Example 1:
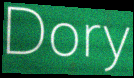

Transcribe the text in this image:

Dory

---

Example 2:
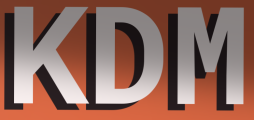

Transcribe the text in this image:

KDM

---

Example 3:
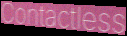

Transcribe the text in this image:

Contactless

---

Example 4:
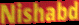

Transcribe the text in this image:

Nishabd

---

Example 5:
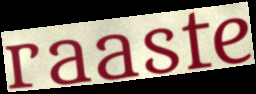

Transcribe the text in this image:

raaste